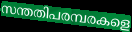
സന്തതിപരമ്പരകളെ